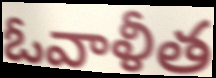
ఓవాళీత